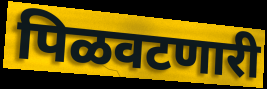
पिळवटणारी